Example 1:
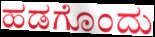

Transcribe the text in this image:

ಹಡಗೊಂದು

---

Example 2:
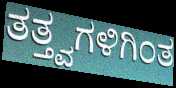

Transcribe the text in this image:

ತತ್ತ್ವಗಳಿಗಿಂತ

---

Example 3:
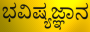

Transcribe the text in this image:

ಭವಿಷ್ಯಜ್ಞಾನ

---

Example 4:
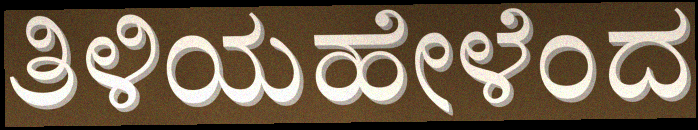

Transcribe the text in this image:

ತಿಳಿಯಹೇಳೆಂದ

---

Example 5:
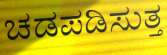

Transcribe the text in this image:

ಚಡಪಡಿಸುತ್ತ